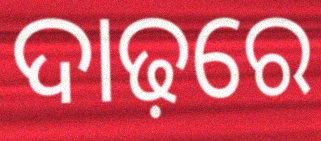
ଦାଢ଼ରେ